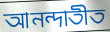
আনন্দাতীত